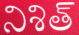
నిశిత్